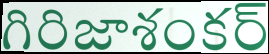
గిరిజాశంకర్